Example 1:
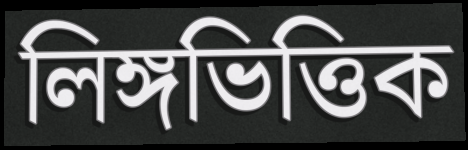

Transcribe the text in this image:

লিঙ্গভিত্তিক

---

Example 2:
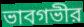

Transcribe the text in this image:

ভাবগভীর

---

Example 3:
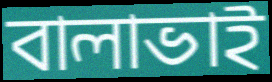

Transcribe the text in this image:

বালাভাই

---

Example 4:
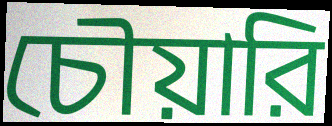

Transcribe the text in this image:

চৌয়ারি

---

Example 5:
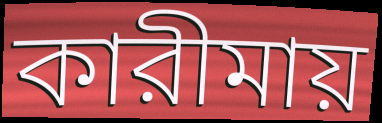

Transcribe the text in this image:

কারীমায়